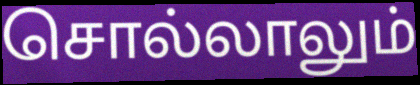
சொல்லாலும்